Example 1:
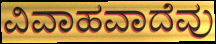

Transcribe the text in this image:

ವಿವಾಹವಾದೆವು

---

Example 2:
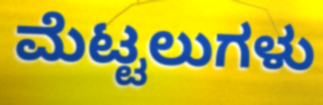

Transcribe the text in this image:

ಮೆಟ್ಟಲುಗಳು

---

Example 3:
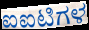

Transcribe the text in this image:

ಐಐಟಿಗಳ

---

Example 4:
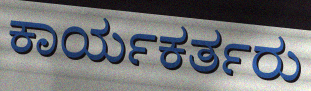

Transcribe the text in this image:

ಕಾರ್ಯಕರ್ತರು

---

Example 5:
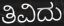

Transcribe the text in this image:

ತಿವಿದು